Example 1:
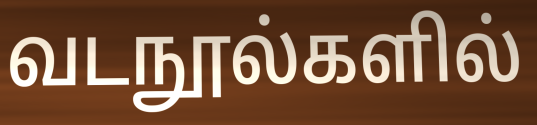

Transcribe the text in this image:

வடநூல்களில்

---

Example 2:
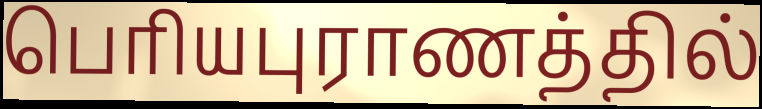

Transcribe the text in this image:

பெரியபுராணத்தில்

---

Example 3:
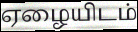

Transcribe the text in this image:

ஏழையிடம்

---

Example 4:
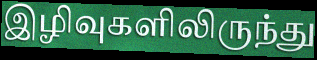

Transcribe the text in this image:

இழிவுகளிலிருந்து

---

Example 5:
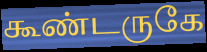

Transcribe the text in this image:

கூண்டருகே